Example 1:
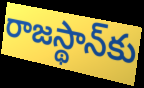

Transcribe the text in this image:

రాజస్థాన్‌కు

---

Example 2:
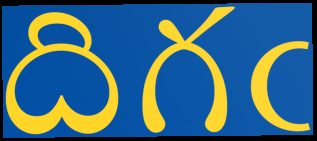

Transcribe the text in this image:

దిగఁ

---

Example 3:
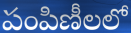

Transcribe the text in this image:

పంపిణీలలో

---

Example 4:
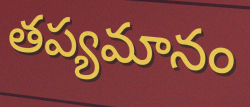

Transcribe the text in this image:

తప్యమానం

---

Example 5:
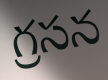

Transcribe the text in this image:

గ్రసన